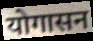
योगासन